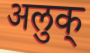
अलुक्